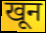
खून